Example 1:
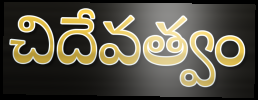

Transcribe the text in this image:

చిదేవత్వం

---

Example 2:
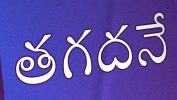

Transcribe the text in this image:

తగదనే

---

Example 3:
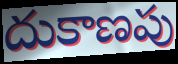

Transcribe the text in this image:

దుకాణపు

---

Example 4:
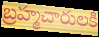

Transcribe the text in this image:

బ్రహ్మచారులకి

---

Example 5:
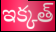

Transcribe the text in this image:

ఇక్కత్